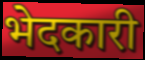
भेदकारी